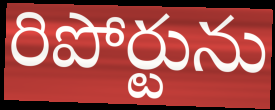
రిపోర్టును